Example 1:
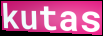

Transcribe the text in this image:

kutas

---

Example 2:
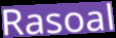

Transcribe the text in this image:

Rasoal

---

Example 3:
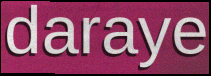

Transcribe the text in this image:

daraye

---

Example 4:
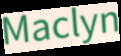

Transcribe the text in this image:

Maclyn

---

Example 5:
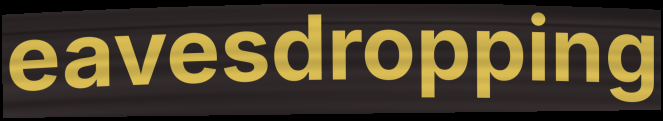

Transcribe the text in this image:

eavesdropping